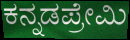
ಕನ್ನಡಪ್ರೇಮಿ